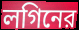
লগিনের